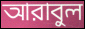
আরাবুল